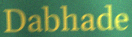
Dabhade